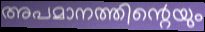
അപമാനത്തിന്റെയും